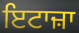
ਇਟਾਜ਼ਾ